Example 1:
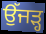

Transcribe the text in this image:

ਉੱਜੜ੍ਹ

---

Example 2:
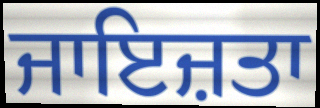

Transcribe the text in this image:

ਜਾਇਜ਼ਤਾ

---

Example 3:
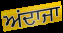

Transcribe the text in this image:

ਅਂਦਾਜਾ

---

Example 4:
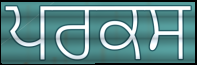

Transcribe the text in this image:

ਪਰਕਸ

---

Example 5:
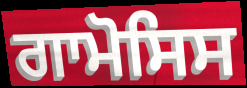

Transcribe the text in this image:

ਗਾਮੋਸਿਸ